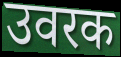
उवरक